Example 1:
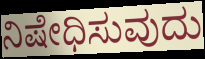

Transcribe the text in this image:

ನಿಷೇಧಿಸುವುದು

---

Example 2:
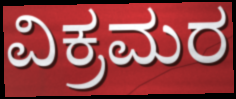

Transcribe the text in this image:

ವಿಕ್ರಮರ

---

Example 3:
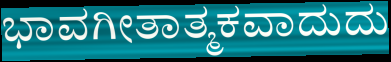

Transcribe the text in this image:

ಭಾವಗೀತಾತ್ಮಕವಾದುದು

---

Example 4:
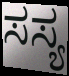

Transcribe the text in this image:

ಸಸ್ಯ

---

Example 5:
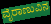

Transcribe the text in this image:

ವೈರಾಣುವಿನ